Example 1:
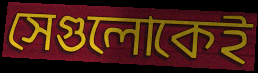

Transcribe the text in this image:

সেগুলোকেই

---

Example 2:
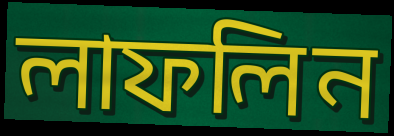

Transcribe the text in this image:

লাফলিন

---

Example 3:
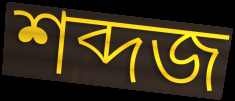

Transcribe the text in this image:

শব্দজ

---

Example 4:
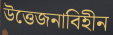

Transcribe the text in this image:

উত্তেজনাবিহীন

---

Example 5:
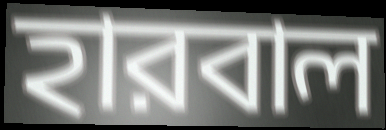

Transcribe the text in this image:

হারবাল